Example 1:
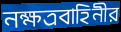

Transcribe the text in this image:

নক্ষত্রবাহিনীর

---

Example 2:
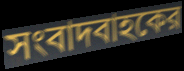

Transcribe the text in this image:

সংবাদবাহকের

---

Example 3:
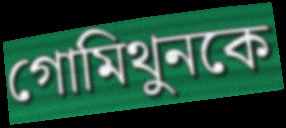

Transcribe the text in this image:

গোমিথুনকে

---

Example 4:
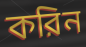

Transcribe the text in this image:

করিন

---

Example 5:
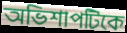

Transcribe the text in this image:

অভিশাপটিকে